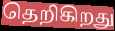
தெறிகிறது